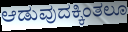
ಆಡುವುದಕ್ಕಿಂತಲೂ